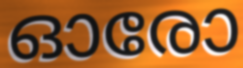
ഓരോ